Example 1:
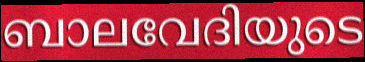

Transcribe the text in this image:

ബാലവേദിയുടെ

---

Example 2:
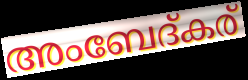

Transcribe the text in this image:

അംബേദ്കര്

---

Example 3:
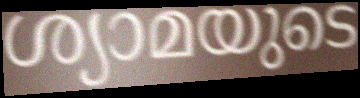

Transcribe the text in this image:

ശ്യാമയുടെ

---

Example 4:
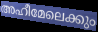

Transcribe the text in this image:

അഹീമേലെക്കും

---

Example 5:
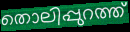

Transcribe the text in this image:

തൊലിപ്പുറത്ത്